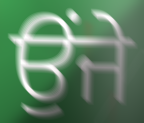
ਉਂਜੇ